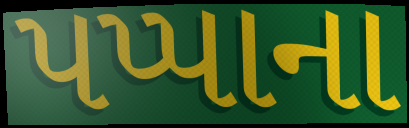
પપ્પાના